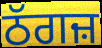
ਠੱਗਜ਼